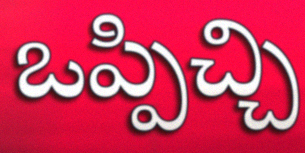
ఒప్పిచ్చి